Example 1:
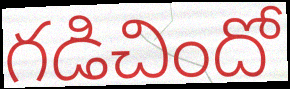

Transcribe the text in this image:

గడిచిందో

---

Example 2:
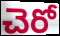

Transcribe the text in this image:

చెరో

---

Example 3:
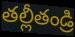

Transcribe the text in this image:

తల్లీతండ్రి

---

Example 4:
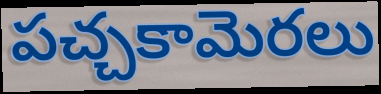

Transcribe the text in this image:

పచ్చకామెరలు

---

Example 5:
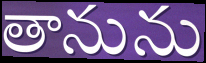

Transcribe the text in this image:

తానును